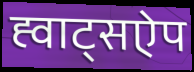
ह्वाट्सऐप